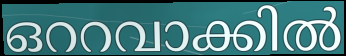
ഒററവാക്കിൽ